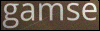
gamse